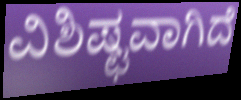
ವಿಶಿಷ್ಟವಾಗಿದೆ